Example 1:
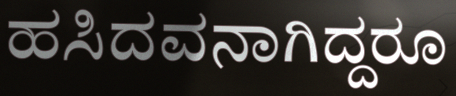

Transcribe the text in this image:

ಹಸಿದವನಾಗಿದ್ದರೂ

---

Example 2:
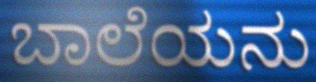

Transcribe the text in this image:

ಬಾಲೆಯನು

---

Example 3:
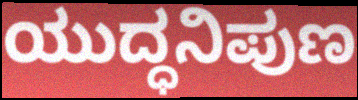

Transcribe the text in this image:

ಯುದ್ಧನಿಪುಣ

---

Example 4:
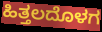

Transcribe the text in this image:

ಹಿತ್ತಲದೊಳಗ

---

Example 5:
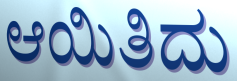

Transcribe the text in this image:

ಆಯಿತಿದು